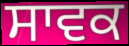
ਸਾਵਕ